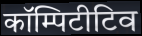
कॉम्पिटीटिव